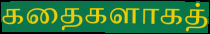
கதைகளாகத்